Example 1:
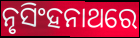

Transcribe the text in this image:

ନୃସିଂହନାଥରେ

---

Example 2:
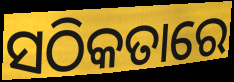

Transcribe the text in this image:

ସଠିକତାରେ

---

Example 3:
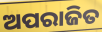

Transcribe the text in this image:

ଅପରାଜିତ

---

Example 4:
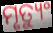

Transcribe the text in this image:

ମୃତ୍ୟୁଂ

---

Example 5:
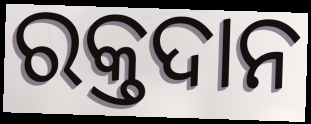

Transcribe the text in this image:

ରକ୍ତଦାନ